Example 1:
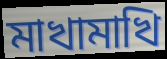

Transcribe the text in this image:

মাখামাখি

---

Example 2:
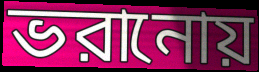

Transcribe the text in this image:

ভরানোয়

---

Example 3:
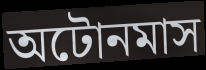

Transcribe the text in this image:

অটোনমাস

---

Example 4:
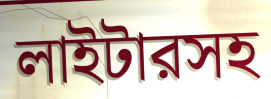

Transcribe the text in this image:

লাইটারসহ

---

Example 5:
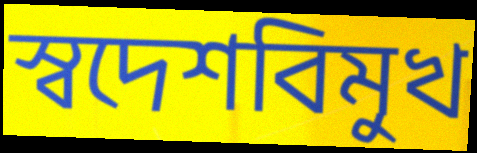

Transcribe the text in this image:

স্বদেশবিমুখ